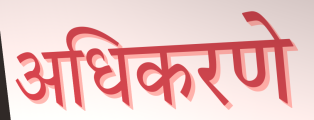
अधिकरणे